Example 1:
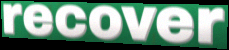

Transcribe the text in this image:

recover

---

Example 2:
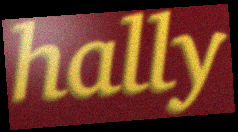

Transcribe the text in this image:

hally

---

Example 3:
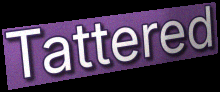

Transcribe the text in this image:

Tattered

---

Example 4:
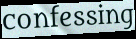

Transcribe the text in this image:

confessing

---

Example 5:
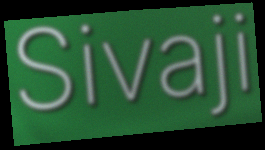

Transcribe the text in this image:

Sivaji